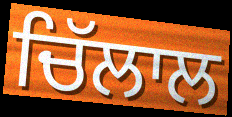
ਚਿੱਲਾਲ